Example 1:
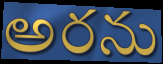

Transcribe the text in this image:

అరను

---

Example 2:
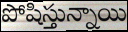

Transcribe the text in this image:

పోషిస్తున్నాయి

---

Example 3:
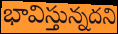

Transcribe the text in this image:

భావిస్తున్నదని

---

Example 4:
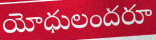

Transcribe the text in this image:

యోధులందరూ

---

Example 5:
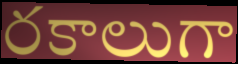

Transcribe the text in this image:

రకాలుగా